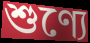
শুণ্যে